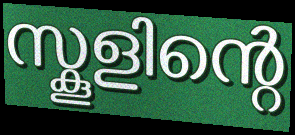
സ്കൂളിന്റെ